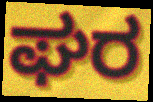
ಘರ